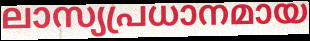
ലാസ്യപ്രധാനമായ